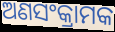
ଅଣସଂକ୍ରାମକ